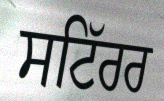
ਸਟਿੱਰਰ